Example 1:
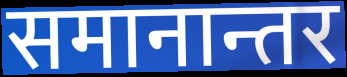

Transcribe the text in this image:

समानान्तर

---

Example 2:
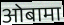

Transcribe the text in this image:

ओबामा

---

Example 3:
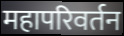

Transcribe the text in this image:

महापरिवर्तन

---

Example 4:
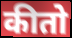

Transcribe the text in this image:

कीतो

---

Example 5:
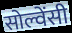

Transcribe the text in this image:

सोल्वेंसी